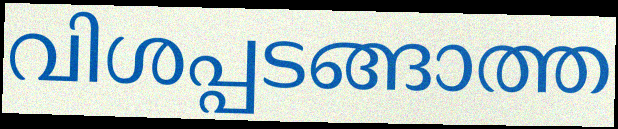
വിശപ്പടങ്ങാത്ത